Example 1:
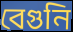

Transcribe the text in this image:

বেগুনি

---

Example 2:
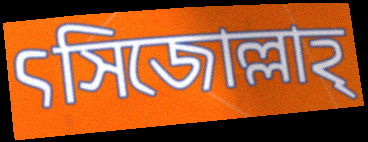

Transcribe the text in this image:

ৎসিজোল্লাহ্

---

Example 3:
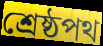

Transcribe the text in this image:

শ্রেষ্ঠপথ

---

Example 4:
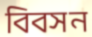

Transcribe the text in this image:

বিবসন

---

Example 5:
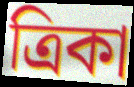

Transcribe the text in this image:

ত্রিকা